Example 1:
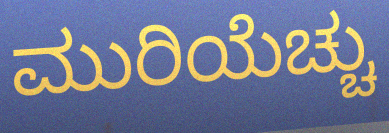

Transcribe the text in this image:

ಮುರಿಯೆಚ್ಚು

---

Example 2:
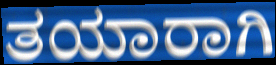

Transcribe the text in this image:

ತಯಾರಾಗಿ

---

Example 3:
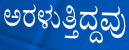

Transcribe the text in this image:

ಅರಳುತ್ತಿದ್ದವು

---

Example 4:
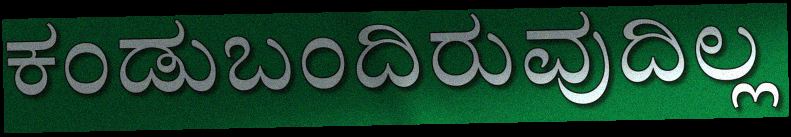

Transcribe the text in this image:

ಕಂಡುಬಂದಿರುವುದಿಲ್ಲ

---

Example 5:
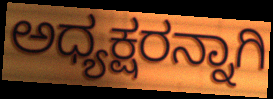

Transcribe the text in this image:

ಅಧ್ಯಕ್ಷರನ್ನಾಗಿ